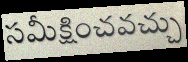
సమీక్షించవచ్చు